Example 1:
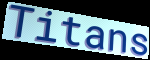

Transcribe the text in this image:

Titans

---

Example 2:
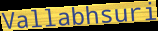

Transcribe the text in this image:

Vallabhsuri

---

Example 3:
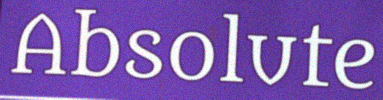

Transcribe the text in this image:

Absolute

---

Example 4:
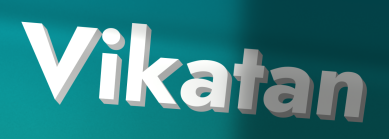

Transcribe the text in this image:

Vikatan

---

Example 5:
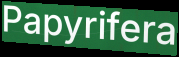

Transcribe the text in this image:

Papyrifera